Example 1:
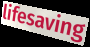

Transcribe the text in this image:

lifesaving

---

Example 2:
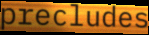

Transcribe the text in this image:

precludes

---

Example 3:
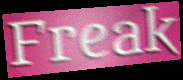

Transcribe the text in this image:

Freak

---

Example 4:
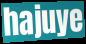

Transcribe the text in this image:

hajuye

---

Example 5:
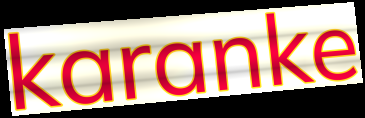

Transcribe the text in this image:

karanke